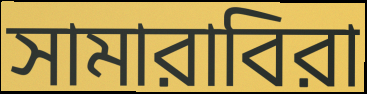
সামারাবিরা